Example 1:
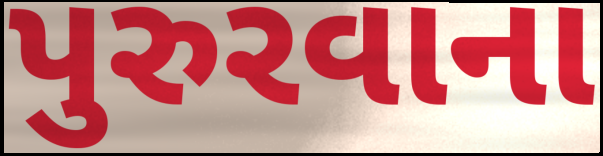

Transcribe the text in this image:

પુરુરવાના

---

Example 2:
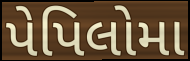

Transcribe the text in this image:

પેપિલોમા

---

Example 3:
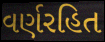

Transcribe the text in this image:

વર્ણરહિત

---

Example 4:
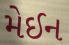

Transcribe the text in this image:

મેઈન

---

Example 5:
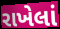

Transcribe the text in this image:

રાખેલાં